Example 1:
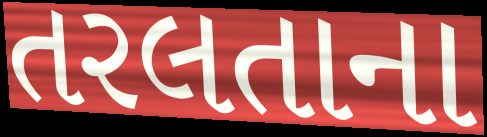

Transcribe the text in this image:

તરલતાના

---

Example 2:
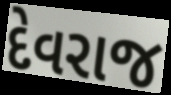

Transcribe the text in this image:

દેવરાજ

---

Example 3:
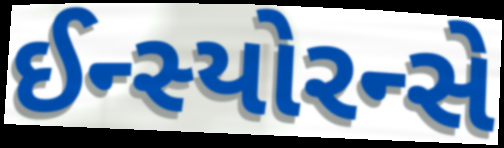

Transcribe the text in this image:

ઈન્સ્યોરન્સે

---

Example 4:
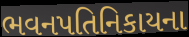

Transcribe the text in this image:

ભવનપતિનિકાયના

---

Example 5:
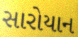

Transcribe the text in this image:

સારોયાન